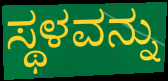
ಸ್ಥಳವನ್ನು